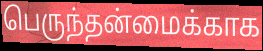
பெருந்தன்மைக்காக